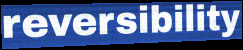
reversibility